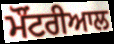
ਮੌਂਟਰੀਆਲ